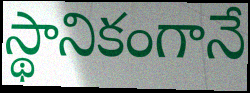
స్థానికంగానే